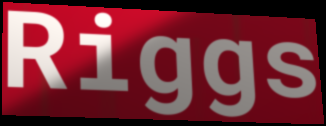
Riggs